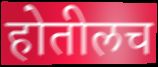
होतीलच